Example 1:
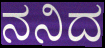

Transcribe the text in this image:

ನನಿದ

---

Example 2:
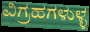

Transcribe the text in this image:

ವಿಗ್ರಹಗಳುಳ್ಳ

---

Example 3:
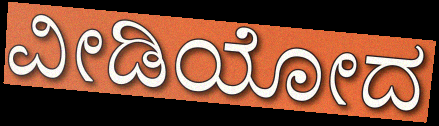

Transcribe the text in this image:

ವೀಡಿಯೋದ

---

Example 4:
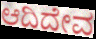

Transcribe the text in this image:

ಆದಿದೇವ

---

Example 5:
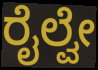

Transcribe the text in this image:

ರೈಲ್ವೇ